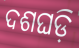
ଦଶଘଡ଼ି